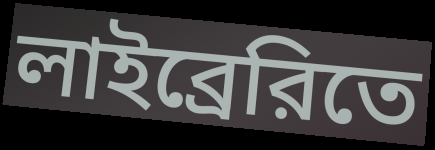
লাইব্রেরিতে